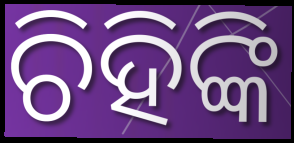
ଚିହିଙ୍କି